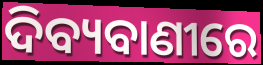
ଦିବ୍ୟବାଣୀରେ